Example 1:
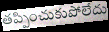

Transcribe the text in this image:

తప్పించుకుపోలేదు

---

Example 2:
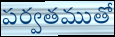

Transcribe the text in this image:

పర్వతముతో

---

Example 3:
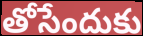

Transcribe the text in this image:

తోసేందుకు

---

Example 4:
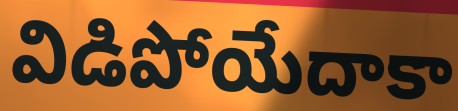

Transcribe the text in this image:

విడిపోయేదాకా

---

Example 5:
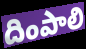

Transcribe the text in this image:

దింపాలి